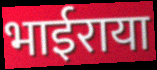
भाईराया